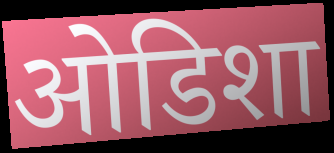
ओडिशा